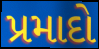
પ્રમાદો